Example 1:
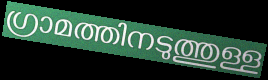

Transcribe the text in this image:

ഗ്രാമത്തിനടുത്തുള്ള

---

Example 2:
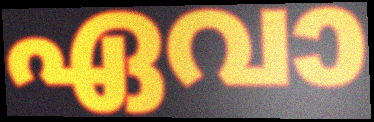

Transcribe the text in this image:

ഏവാ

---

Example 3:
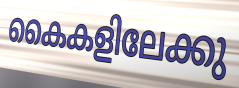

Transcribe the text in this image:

കൈകളിലേക്കു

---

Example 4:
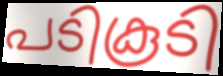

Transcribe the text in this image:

പടികൂടി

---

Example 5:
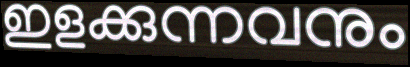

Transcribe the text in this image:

ഇളക്കുന്നവനും